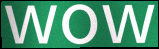
wow